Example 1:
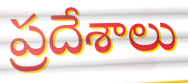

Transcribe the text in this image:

ప్రదేశాలు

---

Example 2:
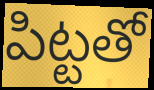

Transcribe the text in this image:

పిట్టతో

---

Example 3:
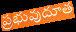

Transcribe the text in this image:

ప్రభువుదూత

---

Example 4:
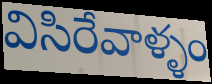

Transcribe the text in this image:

విసిరేవాళ్ళం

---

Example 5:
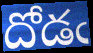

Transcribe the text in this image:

దోడఁ